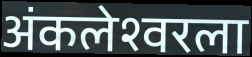
अंकलेश्वरला